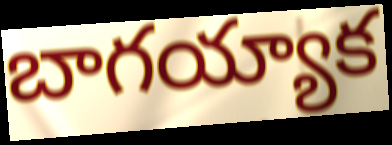
బాగయ్యాక